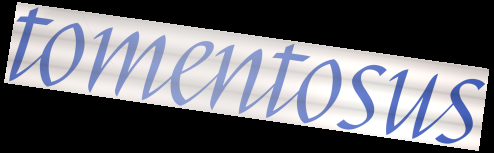
tomentosus